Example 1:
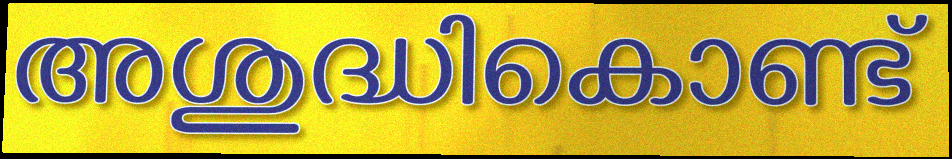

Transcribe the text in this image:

അശുദ്ധികൊണ്ട്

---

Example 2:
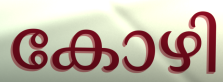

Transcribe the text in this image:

കോഴി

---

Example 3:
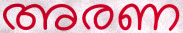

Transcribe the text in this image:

അരണ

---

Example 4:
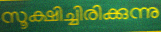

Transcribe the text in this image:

സൂക്ഷിച്ചിരിക്കുന്നു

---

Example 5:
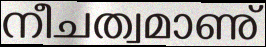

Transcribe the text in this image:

നീചത്വമാണു്